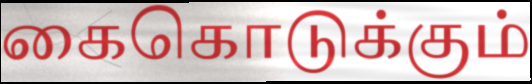
கைகொடுக்கும்